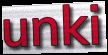
unki